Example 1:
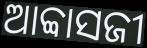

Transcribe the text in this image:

ଆବ୍ବାସଜୀ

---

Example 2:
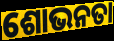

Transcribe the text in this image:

ଶୋଭନତା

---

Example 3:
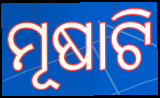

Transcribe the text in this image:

ମୂଷାଟି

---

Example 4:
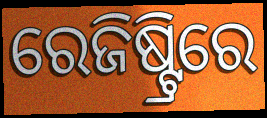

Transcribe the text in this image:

ରେଜିଷ୍ଟ୍ରିରେ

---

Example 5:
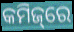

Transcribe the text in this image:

କମିଜ୍‌ରେ